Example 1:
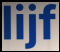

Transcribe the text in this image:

lijf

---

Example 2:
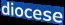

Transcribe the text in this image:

diocese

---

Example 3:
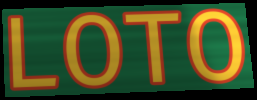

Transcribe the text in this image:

LOTO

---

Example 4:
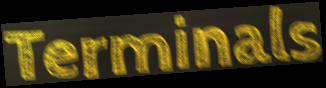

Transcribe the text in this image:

Terminals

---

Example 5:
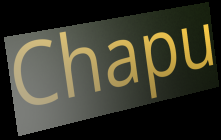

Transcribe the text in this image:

Chapu